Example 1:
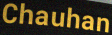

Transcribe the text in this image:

Chauhan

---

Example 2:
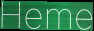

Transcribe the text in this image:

Heme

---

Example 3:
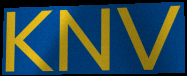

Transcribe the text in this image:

KNV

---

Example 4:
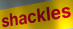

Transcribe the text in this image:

shackles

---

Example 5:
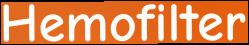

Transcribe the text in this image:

Hemofilter